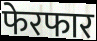
फेरफार